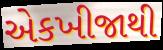
એકખીજાથી